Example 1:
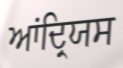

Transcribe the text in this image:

ਆਂਦ੍ਰਿਯਸ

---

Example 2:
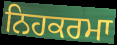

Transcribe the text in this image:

ਨਿਹਕਰਮਾ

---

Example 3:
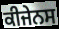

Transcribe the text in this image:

ਕੀਜੇਨਸ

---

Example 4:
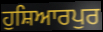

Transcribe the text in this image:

ਹੁਸ਼ਿਆਰਪੁਰ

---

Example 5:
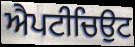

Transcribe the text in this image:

ਐਪਟੀਚਿਉਟ